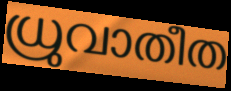
ധ്രുവാതീത